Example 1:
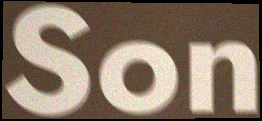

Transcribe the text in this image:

Son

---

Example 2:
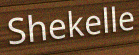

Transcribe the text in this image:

Shekelle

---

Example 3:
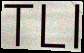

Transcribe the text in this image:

TLI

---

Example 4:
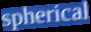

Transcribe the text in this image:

spherical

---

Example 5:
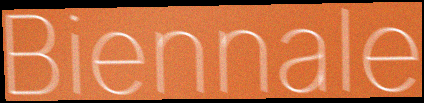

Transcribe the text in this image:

Biennale